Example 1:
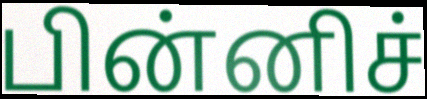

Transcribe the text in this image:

பின்னிச்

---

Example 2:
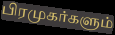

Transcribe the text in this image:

பிரமுகர்களும்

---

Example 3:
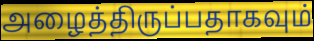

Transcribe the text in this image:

அழைத்திருப்பதாகவும்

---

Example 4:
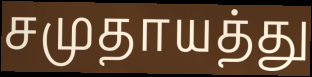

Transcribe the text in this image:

சமுதாயத்து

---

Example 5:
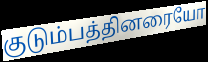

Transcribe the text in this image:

குடும்பத்தினரையோ